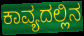
ಕಾವ್ಯದಲ್ಲಿನ